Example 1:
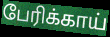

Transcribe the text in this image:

பேரிக்காய்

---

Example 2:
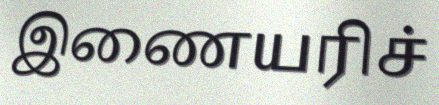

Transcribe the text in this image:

இணையரிச்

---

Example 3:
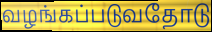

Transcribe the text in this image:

வழங்கப்படுவதோடு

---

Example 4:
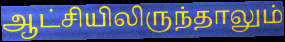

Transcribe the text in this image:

ஆட்சியிலிருந்தாலும்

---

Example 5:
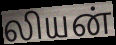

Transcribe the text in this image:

லியன்